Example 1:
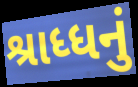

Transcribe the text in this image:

શ્રાધ્ધનું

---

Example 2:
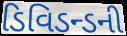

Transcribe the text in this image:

ડિવિડન્ડની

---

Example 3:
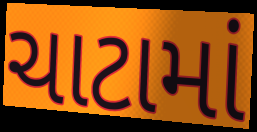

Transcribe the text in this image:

ચાટામાં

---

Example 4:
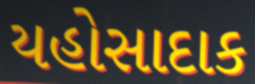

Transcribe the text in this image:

યહોસાદાક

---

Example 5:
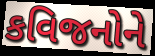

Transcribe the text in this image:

કવિજનોને